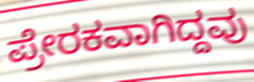
ಪ್ರೇರಕವಾಗಿದ್ದವು